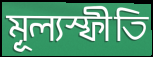
মূল্যস্ফীতি